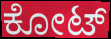
ಕೋಟ್